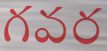
గవర